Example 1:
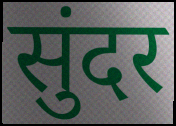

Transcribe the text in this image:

सुंदर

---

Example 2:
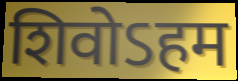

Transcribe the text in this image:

शिवोऽहम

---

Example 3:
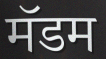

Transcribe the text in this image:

मॅडम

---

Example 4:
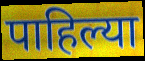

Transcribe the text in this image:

पाहिल्या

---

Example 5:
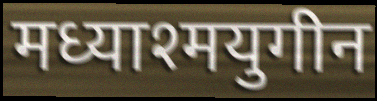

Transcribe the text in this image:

मध्याश्मयुगीन